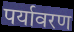
पर्यावरण